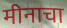
मीनाचा